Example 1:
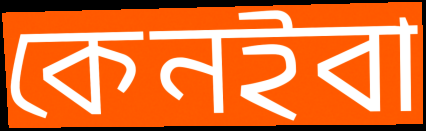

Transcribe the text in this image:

কেনইবা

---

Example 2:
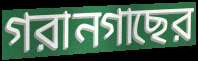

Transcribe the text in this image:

গরানগাছের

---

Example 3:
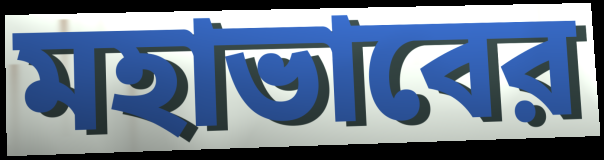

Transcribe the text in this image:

মহাভাবের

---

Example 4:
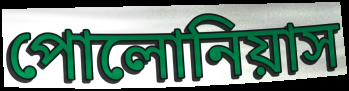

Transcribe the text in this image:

পোলোনিয়াস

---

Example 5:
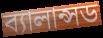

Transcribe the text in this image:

ব্যালান্সড